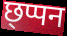
छ्प्पन